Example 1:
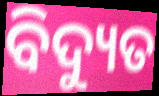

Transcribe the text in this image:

ବିଦ୍ୟୁତ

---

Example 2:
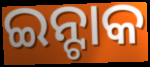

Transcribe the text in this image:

ଇନ୍ଟାକ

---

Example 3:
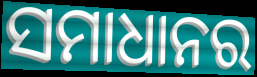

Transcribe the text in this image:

ସମାଧାନର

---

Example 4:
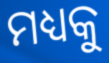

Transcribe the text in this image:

ମଧ୍ୟକୁ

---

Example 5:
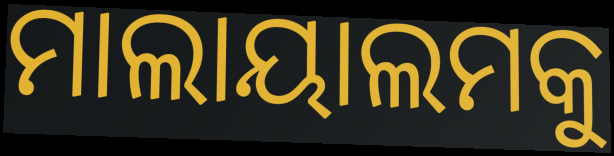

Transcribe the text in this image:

ମାଲାୟାଲମକୁ